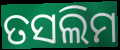
ତସଲିମ